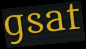
gsat